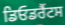
ਡਿਓਡਰੈਂਟਸ